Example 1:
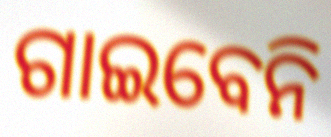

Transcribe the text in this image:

ଗାଇବେନି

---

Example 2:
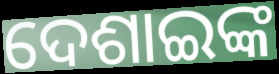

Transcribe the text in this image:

ଦେଶାଇଙ୍କ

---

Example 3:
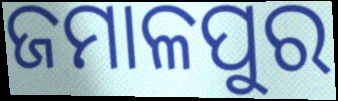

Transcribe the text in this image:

ଜମାଳପୁର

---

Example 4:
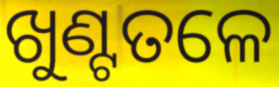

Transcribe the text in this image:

ଖୁଣ୍ଟତଳେ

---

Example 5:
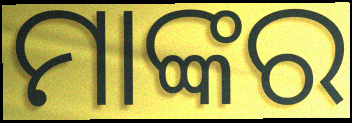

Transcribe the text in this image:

ମାଙ୍କର